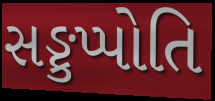
સઙ્કપ્પોતિ